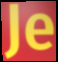
Je